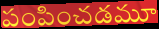
పంపించడమూ